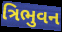
ત્રિભુવન